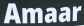
Amaar